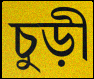
চুড়ী